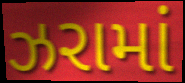
ઝરામાં